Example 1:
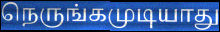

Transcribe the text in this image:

நெருங்கமுடியாது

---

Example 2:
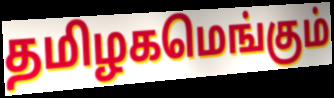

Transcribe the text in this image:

தமிழகமெங்கும்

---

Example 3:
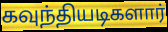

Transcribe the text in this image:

கவுந்தியடிகளார்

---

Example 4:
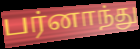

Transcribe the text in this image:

பர்னாந்து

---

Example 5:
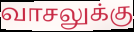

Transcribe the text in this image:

வாசலுக்கு